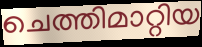
ചെത്തിമാറ്റിയ